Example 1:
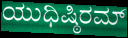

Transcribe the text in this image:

ಯುಧಿಷ್ಠಿರಮ್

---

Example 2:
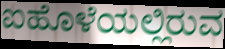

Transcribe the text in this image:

ಐಹೊಳೆಯಲ್ಲಿರುವ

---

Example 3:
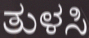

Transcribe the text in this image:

ತುಳಸಿ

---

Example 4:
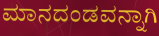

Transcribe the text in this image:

ಮಾನದಂಡವನ್ನಾಗಿ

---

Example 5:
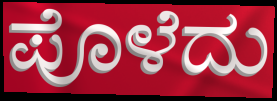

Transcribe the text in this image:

ಪೊಳೆದು